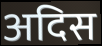
अदिस